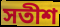
সতীশ